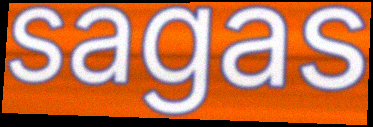
sagas